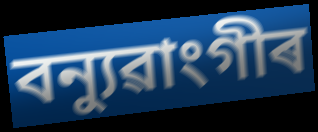
বন্যুৱাংগীৰ